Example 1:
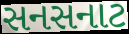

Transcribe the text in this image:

સનસનાટ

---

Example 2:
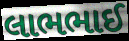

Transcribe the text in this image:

લાભભાઈ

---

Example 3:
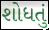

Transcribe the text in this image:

શોધતું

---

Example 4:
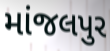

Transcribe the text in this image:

માંજલપુર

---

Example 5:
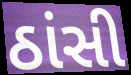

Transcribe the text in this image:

ઠાંસી